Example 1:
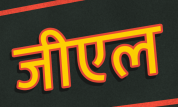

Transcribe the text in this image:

जीएल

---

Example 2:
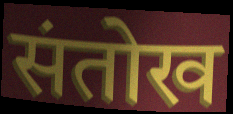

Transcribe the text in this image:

संतोख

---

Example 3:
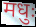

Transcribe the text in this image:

मधुः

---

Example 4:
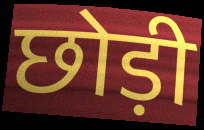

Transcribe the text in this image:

छोड़ी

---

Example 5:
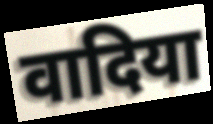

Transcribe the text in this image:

वादिया